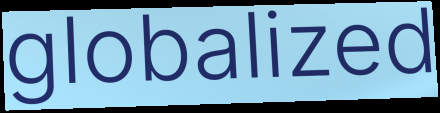
globalized